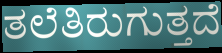
ತಲೆತಿರುಗುತ್ತದೆ